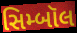
સિમ્બૉલ